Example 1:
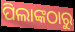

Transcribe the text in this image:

ପିଲାଙ୍କଠାରୁ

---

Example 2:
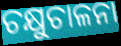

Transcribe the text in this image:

ଚକ୍ଷୁଚାଳନା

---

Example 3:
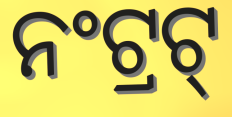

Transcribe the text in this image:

ନଂଟ୍ରଟ୍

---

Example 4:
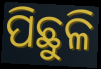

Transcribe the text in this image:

ପିଛୁଳି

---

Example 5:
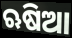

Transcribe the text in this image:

ଋଷିଆ